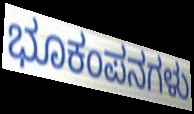
ಭೂಕಂಪನಗಳು